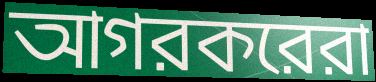
আগরকরেরা